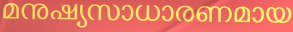
മനുഷ്യസാധാരണമായ